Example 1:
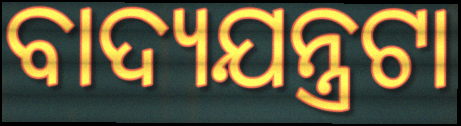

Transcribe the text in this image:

ବାଦ୍ୟଯନ୍ତ୍ରଟା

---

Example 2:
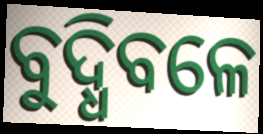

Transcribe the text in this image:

ବୁଦ୍ଧିବଳେ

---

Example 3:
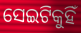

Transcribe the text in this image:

ସେଇଟିକୁହିଁ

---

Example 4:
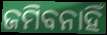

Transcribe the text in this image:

ଜମିବନାହିଁ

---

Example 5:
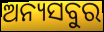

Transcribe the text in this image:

ଅନ୍ୟସବୁର